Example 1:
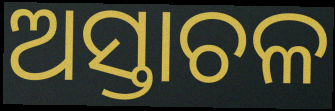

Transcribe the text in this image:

ଅସ୍ତାଚଳ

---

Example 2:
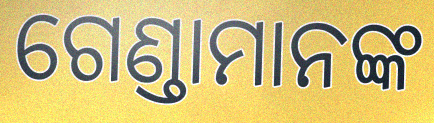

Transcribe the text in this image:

ଗେଣ୍ଡାମାନଙ୍କ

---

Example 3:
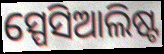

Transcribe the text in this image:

ସ୍ପେସିଆଲିଷ୍ଟ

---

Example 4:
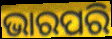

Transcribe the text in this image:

ଭାରପରି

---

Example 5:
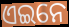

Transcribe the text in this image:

ଏଇନେ